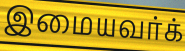
இமையவர்க்